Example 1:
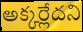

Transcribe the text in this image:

అక్కర్లేదని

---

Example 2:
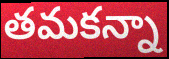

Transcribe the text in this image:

తమకన్నా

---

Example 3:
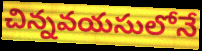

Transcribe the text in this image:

చిన్నవయసులోనే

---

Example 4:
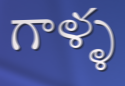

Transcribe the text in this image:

గాళ్ళ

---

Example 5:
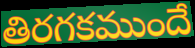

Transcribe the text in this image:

తిరగకముందే